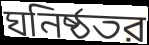
ঘনিষ্ঠতর